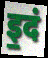
इ॒दं